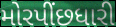
મોરપીંછધારી